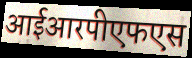
आईआरपीएफएस